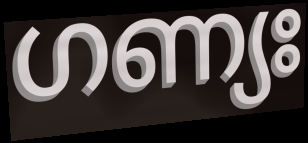
ഗണ്യഃ